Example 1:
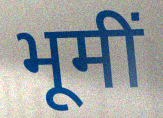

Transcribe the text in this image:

भूमीं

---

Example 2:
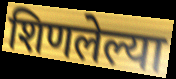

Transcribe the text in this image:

शिणलेल्या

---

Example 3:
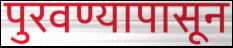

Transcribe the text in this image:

पुरवण्यापासून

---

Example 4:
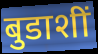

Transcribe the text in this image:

बुडाशीं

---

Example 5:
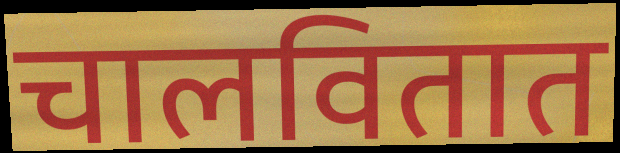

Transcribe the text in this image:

चालवितात